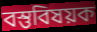
বস্তুবিষয়ক